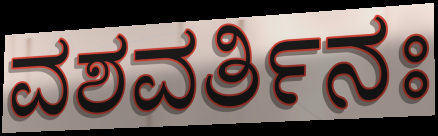
ವಶವರ್ತಿನಃ